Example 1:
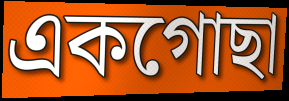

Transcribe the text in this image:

একগোছা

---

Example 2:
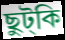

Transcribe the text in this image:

ছুট্কি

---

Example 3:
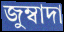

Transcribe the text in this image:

জুম্বাদা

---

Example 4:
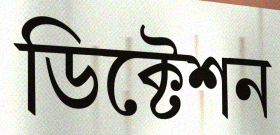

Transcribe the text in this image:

ডিক্টেশন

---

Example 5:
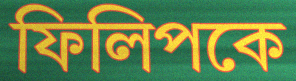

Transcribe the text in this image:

ফিলিপকে